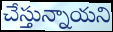
చేస్తున్నాయని